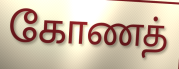
கோணத்